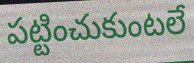
పట్టించుకుంటలే